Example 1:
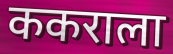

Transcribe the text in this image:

ककराला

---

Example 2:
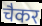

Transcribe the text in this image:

चैकर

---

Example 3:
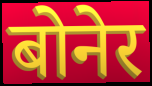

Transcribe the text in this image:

बोनेर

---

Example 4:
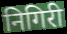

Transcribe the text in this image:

निगिरी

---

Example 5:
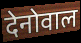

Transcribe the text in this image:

देनोवाल